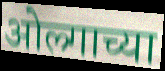
ओल्गाच्या